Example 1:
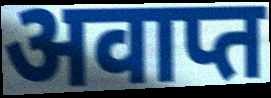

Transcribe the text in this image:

अवाप्त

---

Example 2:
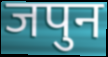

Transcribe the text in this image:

जपुन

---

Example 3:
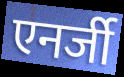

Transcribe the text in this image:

एनर्जी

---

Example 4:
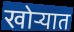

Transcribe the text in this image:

खोर्‍यात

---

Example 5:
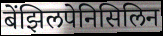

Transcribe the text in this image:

बेंझिलपेनिसिलिन